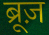
ब्रूज़